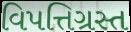
વિપત્તિગ્રસ્ત